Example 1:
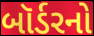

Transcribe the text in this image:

બૉર્ડરનો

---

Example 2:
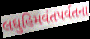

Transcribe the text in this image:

લઘુહિમવંતપર્વતના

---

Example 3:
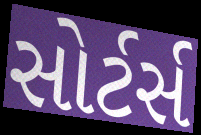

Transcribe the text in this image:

સોર્ટર્સ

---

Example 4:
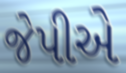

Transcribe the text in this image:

જેપીએ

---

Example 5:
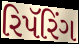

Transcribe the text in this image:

રિપૅરિંગ